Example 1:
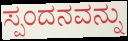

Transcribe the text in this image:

ಸ್ಪಂದನವನ್ನು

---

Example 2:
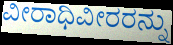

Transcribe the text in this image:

ವೀರಾಧಿವೀರರನ್ನು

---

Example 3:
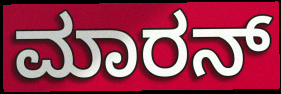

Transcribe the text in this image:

ಮಾರನ್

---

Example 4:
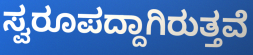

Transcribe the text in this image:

ಸ್ವರೂಪದ್ದಾಗಿರುತ್ತವೆ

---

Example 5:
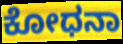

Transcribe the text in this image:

ಕೋಧನಾ